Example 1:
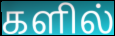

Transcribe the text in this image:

களில்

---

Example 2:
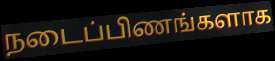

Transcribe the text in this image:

நடைப்பிணங்களாக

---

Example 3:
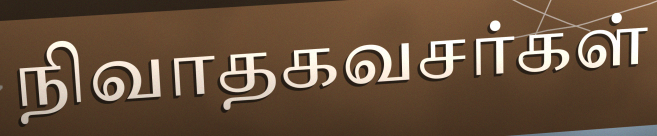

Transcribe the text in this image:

நிவாதகவசர்கள்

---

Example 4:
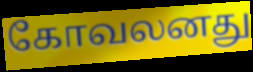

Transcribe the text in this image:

கோவலனது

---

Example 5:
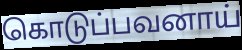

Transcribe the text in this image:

கொடுப்பவனாய்